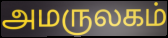
அமருலகம்